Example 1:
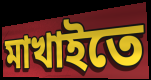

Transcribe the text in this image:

মাখাইতে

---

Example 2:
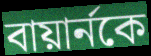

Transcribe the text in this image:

বায়ার্নকে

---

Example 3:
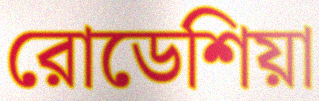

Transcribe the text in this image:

রোডেশিয়া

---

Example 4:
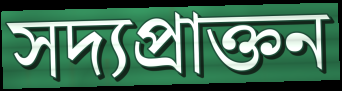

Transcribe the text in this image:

সদ্যপ্রাক্তন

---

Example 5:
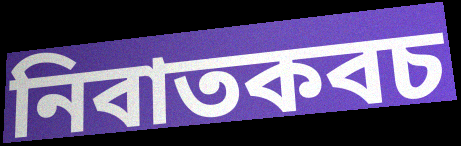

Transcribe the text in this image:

নিবাতকবচ